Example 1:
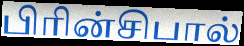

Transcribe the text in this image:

பிரின்சிபால்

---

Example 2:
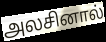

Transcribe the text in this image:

அலசினால்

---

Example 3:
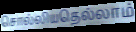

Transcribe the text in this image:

சொல்லியதெல்லாம்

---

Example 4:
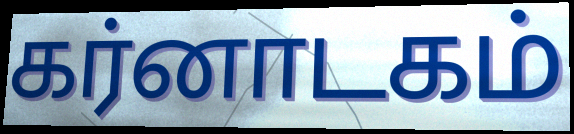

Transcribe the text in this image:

கர்னாடகம்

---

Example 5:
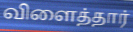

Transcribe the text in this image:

விளைத்தார்